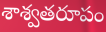
శాశ్వతరూపం